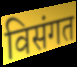
विसंगत